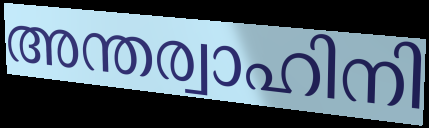
അന്തര്വാഹിനി